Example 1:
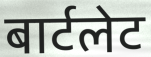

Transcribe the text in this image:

बार्टलेट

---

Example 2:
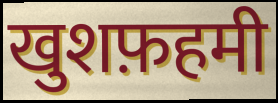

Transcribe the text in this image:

खुशफ़हमी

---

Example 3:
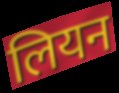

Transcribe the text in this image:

लियन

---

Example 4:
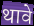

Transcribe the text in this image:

थावे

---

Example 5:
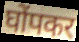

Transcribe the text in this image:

घोंपकर